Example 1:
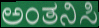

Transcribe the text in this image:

ಅಂತನಿಸಿ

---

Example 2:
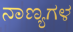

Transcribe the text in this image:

ನಾಣ್ಯಗಳ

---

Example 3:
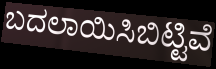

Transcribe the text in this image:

ಬದಲಾಯಿಸಿಬಿಟ್ಟಿವೆ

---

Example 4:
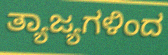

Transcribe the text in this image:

ತ್ಯಾಜ್ಯಗಳಿಂದ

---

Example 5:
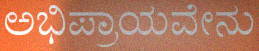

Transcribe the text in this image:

ಅಭಿಪ್ರಾಯವೇನು